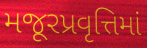
મજૂરપ્રવૃત્તિમાં